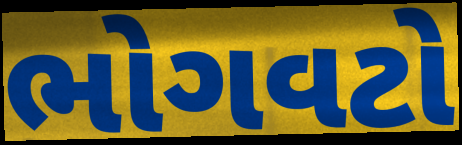
ભોગવટો